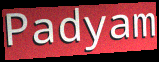
Padyam